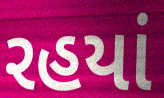
રહયાં